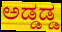
ಅಡ್ಡಡ್ಡ